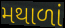
મથાળાં